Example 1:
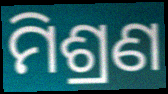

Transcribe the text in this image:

ମିଶ୍ରଣ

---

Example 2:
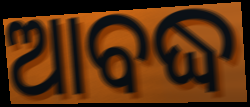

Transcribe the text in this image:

ଆବଦ୍ଧ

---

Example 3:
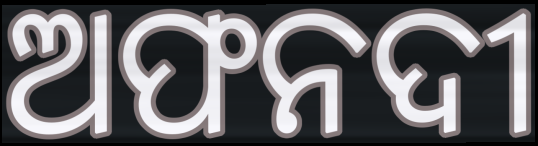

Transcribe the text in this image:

ଅଫନଦୀ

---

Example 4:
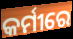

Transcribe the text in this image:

କର୍ମୀରେ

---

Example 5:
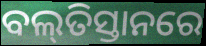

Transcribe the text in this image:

ବଲ୍‌ତିସ୍ତାନରେ